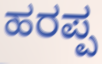
ಹರಪ್ಪ